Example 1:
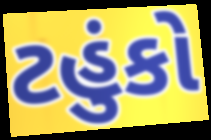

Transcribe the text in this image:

ટહુંકો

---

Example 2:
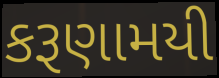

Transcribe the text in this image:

કરૂણામયી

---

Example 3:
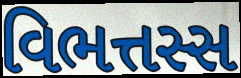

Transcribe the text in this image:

વિભત્તસ્સ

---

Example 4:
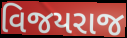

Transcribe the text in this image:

વિજયરાજ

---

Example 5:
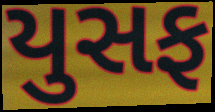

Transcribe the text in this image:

યુસફ